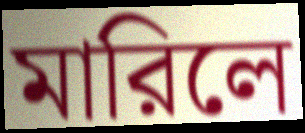
মারিলে